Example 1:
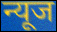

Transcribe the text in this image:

न्‍यूज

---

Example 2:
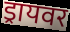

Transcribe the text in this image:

ड्रायवर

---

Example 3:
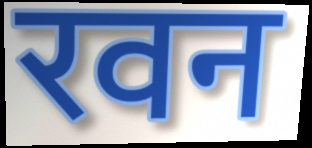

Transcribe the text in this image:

रवन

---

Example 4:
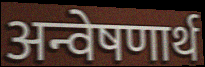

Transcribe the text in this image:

अन्वेषणार्थ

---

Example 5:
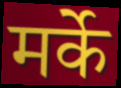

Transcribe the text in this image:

मर्के